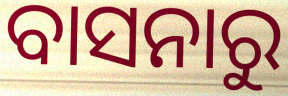
ବାସନାରୁ